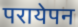
परायेपन